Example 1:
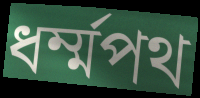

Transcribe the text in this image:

ধর্ম্মপথ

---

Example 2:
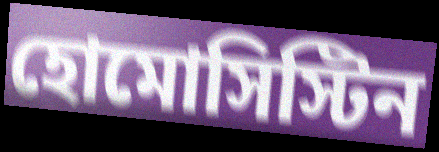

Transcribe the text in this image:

হোমোসিস্টিন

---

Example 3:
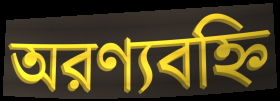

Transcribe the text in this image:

অরণ্যবহ্নি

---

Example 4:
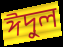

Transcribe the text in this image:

ঈদুল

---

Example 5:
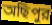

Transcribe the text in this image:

অছিপুর